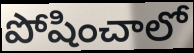
పోషించాలో